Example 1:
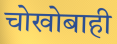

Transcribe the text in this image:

चोखोबाही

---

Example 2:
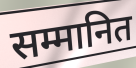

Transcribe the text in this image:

सम्मानित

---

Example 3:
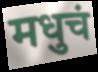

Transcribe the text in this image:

मधुचं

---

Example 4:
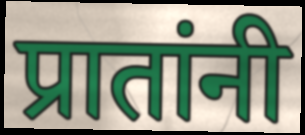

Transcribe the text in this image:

प्रातांनी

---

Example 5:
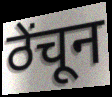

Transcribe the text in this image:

ठेंचून